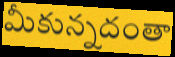
మీకున్నదంతా